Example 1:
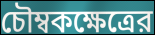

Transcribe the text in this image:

চৌম্বকক্ষেত্রের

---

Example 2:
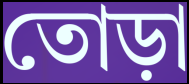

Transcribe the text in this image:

তোড়া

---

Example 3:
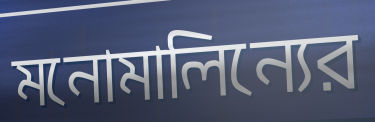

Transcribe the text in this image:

মনোমালিন্যের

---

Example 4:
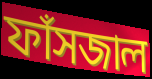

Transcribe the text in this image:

ফাঁসজাল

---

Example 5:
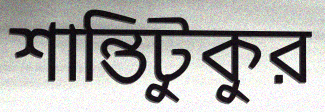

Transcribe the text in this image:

শান্তিটুকুর